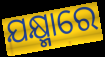
ଯକ୍ଷ୍ମାରେ